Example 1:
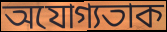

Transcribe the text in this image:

অযোগ্যতাক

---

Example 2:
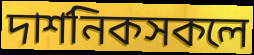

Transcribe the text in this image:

দাৰ্শনিকসকলে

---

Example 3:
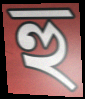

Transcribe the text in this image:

হু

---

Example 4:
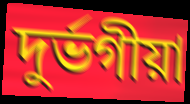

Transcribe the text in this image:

দুৰ্ভগীয়া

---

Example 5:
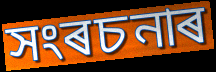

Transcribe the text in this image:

সংৰচনাৰ